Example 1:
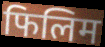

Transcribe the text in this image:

फिलिम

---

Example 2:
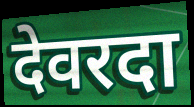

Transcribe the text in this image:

देवरदा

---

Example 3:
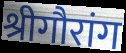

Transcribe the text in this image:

श्रीगौरांग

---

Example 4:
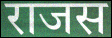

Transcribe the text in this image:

राजस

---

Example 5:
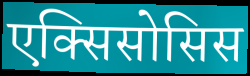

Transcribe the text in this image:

एक्सिसोसिस